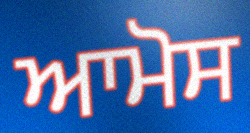
ਆਮੋਸ